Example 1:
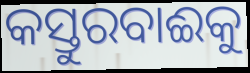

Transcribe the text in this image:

କସ୍ତୁରବାଈକୁ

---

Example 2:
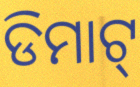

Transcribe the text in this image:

ଡିମାଟ୍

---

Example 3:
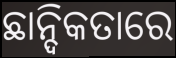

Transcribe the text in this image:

ଛାନ୍ଦିକତାରେ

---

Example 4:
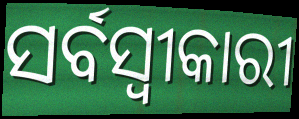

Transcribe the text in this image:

ସର୍ବସ୍ଵୀକାରୀ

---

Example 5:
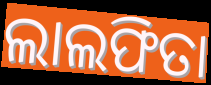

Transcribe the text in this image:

ଲାଲଫିତା